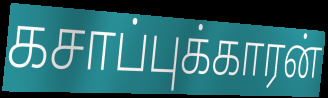
கசாப்புக்காரன்